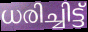
ധരിച്ചിട്ട്